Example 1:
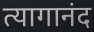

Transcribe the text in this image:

त्यागानंद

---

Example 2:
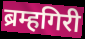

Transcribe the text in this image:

ब्रम्हगिरी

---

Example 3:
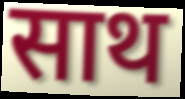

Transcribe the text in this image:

साथ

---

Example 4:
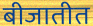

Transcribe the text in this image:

बीजातीत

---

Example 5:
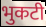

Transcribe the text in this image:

भुकटी